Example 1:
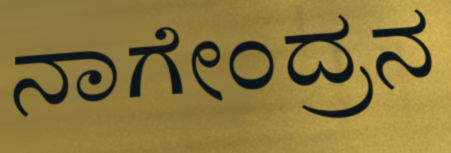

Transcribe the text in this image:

ನಾಗೇಂದ್ರನ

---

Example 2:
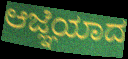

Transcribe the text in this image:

ಆಜ್ಞೆಯಾದ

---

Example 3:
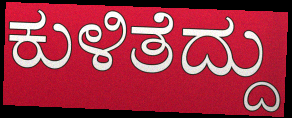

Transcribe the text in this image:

ಕುಳಿತೆದ್ದು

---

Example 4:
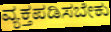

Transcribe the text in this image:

ವ್ಯಕ್ತಪಡಿಸಬೇಕು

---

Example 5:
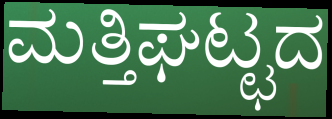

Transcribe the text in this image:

ಮತ್ತಿಘಟ್ಟದ